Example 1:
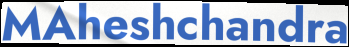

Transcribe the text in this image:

MAheshchandra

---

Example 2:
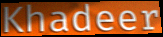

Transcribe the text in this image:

Khadeer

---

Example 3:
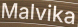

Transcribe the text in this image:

Malvika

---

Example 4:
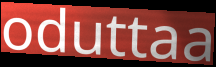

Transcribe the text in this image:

oduttaa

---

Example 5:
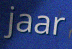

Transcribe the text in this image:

jaar